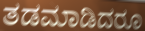
ತಡಮಾಡಿದರೂ